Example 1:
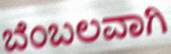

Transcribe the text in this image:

ಬೆಂಬಲವಾಗಿ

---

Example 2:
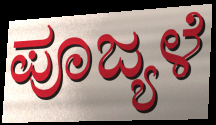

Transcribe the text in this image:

ಪೂಜ್ಯಳೆ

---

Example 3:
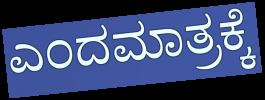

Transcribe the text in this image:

ಎಂದಮಾತ್ರಕ್ಕೆ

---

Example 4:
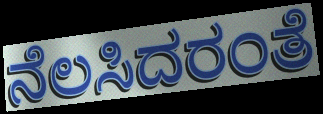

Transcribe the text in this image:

ನೆಲಸಿದರಂತೆ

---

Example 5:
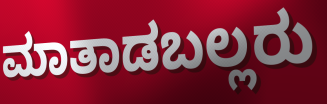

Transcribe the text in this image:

ಮಾತಾಡಬಲ್ಲರು